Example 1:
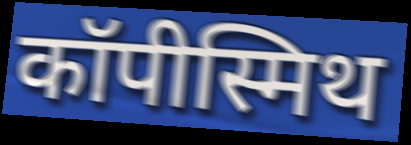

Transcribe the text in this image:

कॉपीस्मिथ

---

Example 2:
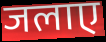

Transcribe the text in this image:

जलाए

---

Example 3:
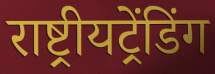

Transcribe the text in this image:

राष्ट्रीयट्रेंडिंग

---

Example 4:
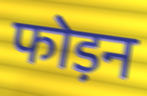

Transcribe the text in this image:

फोड़न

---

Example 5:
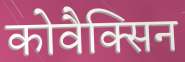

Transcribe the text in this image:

कोवैक्सिन